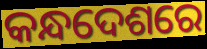
କନ୍ଧଦେଶରେ